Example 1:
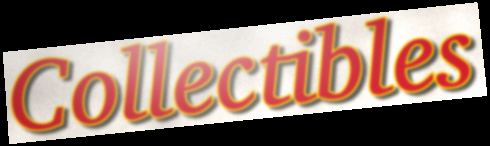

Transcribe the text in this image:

Collectibles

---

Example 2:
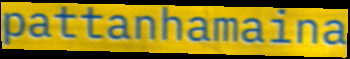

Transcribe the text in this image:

pattanhamaina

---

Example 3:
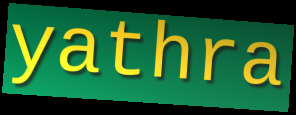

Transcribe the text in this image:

yathra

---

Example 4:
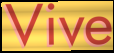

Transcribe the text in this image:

Vive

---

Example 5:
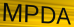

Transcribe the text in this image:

MPDA